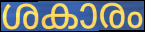
ശകാരം